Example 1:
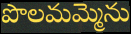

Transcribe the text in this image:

పొలమమ్మెను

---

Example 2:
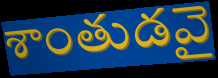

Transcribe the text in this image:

శాంతుడవై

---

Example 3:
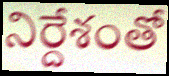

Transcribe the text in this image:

నిర్దేశంతో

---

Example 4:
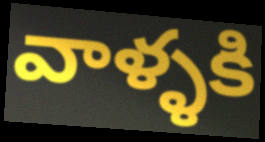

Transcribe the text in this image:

వాళ్ళకి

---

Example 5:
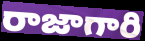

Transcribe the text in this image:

రాజాగారి